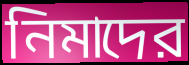
নিমাদের